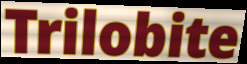
Trilobite